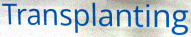
Transplanting